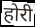
होरी